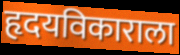
हृदयविकाराला